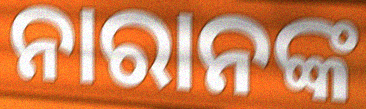
ନାରାନଙ୍କ